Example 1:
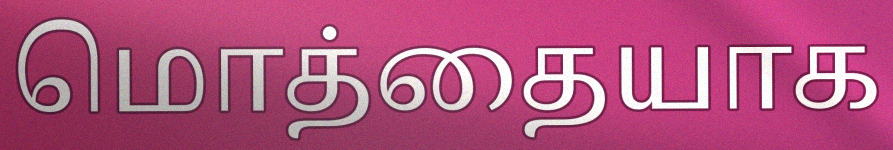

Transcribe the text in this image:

மொத்தையாக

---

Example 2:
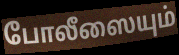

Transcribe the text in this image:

போலீஸையும்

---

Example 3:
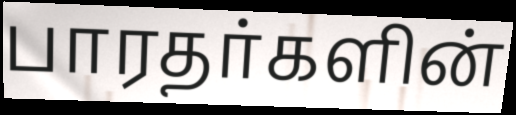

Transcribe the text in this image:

பாரதர்களின்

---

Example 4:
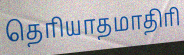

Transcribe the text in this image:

தெரியாதமாதிரி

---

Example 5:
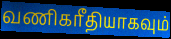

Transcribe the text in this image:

வணிகரீதியாகவும்